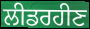
ਲੀਡਰਹੀਣ